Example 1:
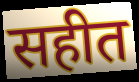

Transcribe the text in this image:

सहीत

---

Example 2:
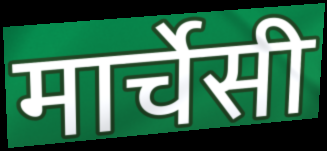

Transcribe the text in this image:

मार्चेसी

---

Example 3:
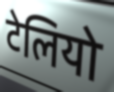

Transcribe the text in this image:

टेलियो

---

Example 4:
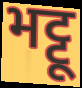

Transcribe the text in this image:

भट्टू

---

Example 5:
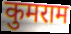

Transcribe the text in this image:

कुमराम